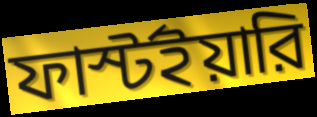
ফার্স্টইয়ারি